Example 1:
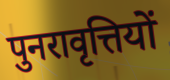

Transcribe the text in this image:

पुनरावृत्तियों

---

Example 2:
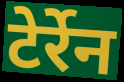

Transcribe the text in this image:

टेर्रेन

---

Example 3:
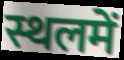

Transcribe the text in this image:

स्थलमें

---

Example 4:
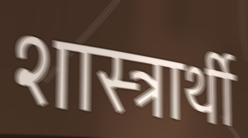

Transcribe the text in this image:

शास्त्रार्थी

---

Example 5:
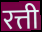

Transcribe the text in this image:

रत्ती